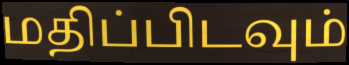
மதிப்பிடவும்